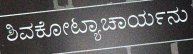
ಶಿವಕೋಟ್ಯಾಚಾರ್ಯನು